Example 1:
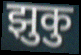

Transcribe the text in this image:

झुकु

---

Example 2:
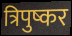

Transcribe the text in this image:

त्रिपुष्कर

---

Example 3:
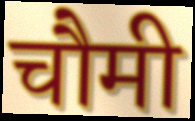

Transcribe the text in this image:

चौमी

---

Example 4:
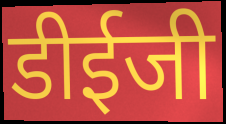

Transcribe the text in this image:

डीईजी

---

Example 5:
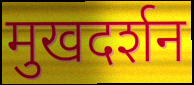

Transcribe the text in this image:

मुखदर्शन